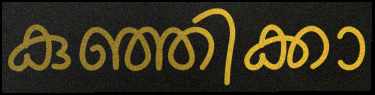
കുഞ്ഞിക്കാ